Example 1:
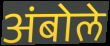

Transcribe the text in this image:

अंबोले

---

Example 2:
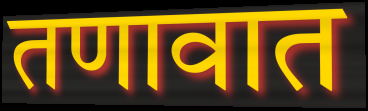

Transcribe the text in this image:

तणावात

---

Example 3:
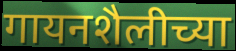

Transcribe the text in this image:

गायनशैलीच्या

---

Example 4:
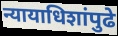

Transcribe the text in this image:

न्यायाधिशांपुढे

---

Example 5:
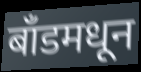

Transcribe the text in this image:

बाँडमधून